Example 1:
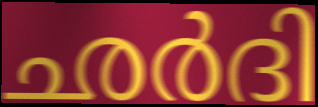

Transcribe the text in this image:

ഛർദി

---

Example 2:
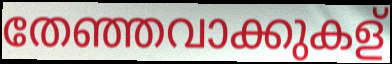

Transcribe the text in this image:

തേഞ്ഞവാക്കുകള്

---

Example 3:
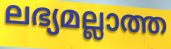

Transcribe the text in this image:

ലഭ്യമല്ലാത്ത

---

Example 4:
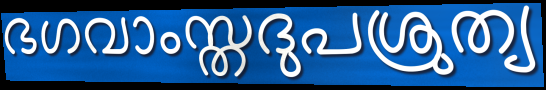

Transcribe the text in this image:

ഭഗവാംസ്തദുപശ്രുത്യ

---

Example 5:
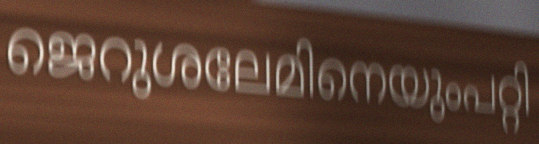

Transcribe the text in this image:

ജെറുശലേമിനെയുംപറ്റി